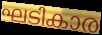
ഘടികാര